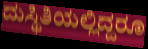
ದುಸ್ಥಿತಿಯಲ್ಲಿದ್ದರೂ